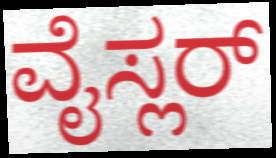
ವೈಸ್ಲರ್